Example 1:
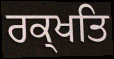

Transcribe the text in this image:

ਰਕ੍ਖਤਿ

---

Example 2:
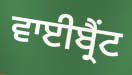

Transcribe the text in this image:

ਵਾਈਬ੍ਰੈਂਟ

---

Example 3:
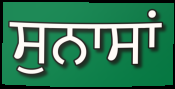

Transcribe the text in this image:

ਸੁਨਾਸਾਂ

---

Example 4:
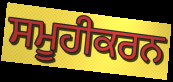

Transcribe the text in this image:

ਸਮੂਹੀਕਰਨ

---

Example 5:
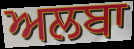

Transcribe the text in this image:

ਅਲਬਾ